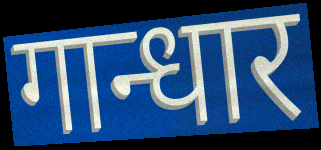
गान्धार